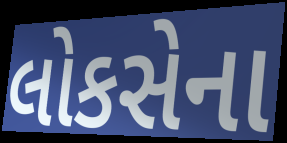
લોકસેના